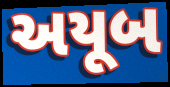
અયૂબ